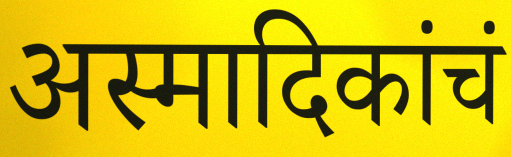
अस्मादिकांचं